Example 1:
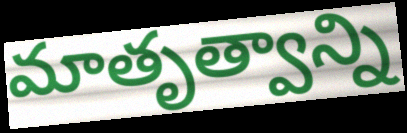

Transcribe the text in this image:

మాతృత్వాన్ని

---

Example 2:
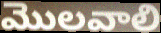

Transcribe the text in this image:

మొలవాలి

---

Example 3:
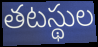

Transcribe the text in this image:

తటస్థుల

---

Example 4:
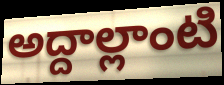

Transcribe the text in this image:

అద్దాల్లాంటి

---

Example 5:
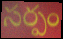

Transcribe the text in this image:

సర్పం